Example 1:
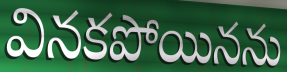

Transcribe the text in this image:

వినకపోయినను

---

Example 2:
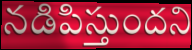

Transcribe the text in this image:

నడిపిస్తుందని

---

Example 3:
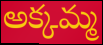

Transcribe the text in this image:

అక్కమ్మ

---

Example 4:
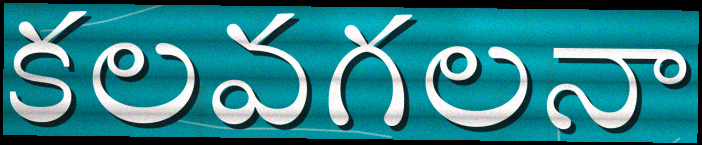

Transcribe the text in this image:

కలవగలనా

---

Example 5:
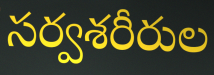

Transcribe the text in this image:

సర్వశరీరుల